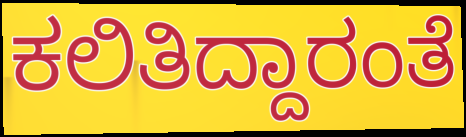
ಕಲಿತಿದ್ದಾರಂತೆ